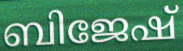
ബിജേഷ്